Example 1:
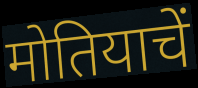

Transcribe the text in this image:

मोतियाचें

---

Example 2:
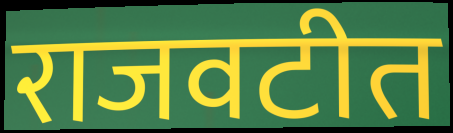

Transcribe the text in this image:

राजवटीत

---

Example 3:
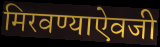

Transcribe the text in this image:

मिरवण्याऐवजी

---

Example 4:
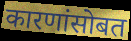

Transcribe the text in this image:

कारणांसोबत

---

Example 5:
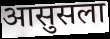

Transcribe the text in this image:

आसुसला